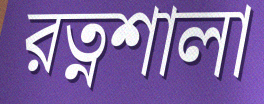
রত্নশালা